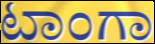
ಟಾಂಗಾ